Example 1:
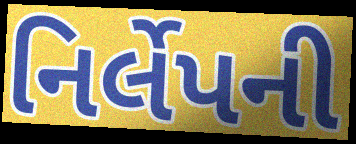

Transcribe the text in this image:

નિર્લેપની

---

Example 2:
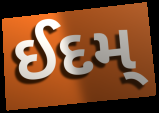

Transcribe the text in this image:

ઈદમ્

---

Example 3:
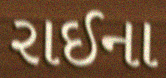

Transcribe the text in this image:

રાઈના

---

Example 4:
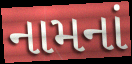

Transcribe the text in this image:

નામનાં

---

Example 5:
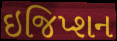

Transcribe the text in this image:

ઇજિપ્શન